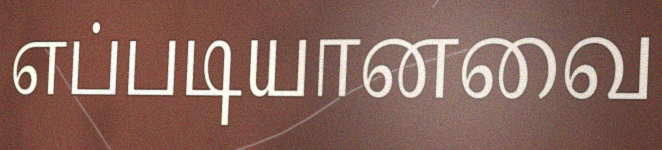
எப்படியானவை